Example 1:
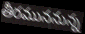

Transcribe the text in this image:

తీరముననున్న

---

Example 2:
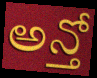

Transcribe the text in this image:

అన్తో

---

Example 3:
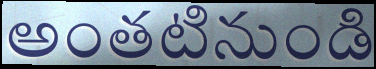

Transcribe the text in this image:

అంతటినుండి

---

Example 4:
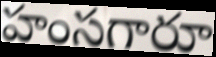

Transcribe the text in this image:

హంసగారూ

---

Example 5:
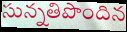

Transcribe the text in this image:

సున్నతిపొందిన